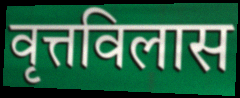
वृत्तविलास